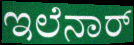
ಇಲೆನಾರ್